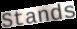
Stands